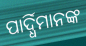
ପାର୍ଦ୍ଧିମାନଙ୍କ